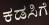
ಕಡಸಿಗೆ